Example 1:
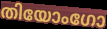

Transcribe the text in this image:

തിയോംഗോ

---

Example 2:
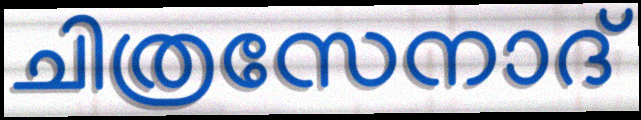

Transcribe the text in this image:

ചിത്രസേനാദ്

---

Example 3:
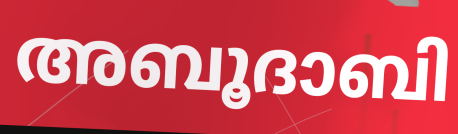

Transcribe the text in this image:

അബൂദാബി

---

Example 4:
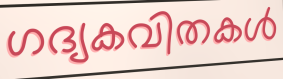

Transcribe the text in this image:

ഗദ്യകവിതകൾ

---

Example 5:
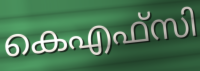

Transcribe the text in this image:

കെഎഫ്സി